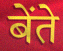
बेंते